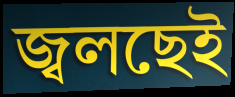
জ্বলছেই